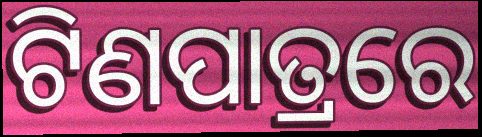
ଟିଣପାତ୍ରରେ